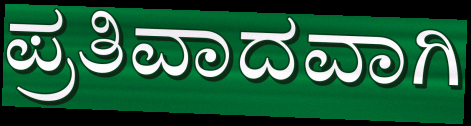
ಪ್ರತಿವಾದವಾಗಿ